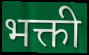
भक्ती